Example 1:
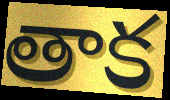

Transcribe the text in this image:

తాక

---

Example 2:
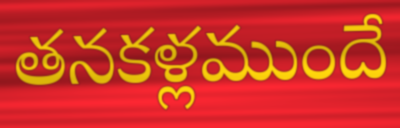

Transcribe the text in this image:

తనకళ్లముందే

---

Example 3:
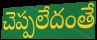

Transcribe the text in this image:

చెప్పలేదంతే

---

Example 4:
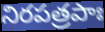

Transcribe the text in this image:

నిరపత్రపాః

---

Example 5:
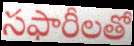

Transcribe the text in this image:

సఫారీలతో